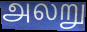
அலறு